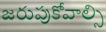
జరుపుకోవాల్సి